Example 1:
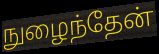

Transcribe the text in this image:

நுழைந்தேன்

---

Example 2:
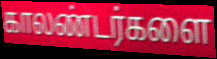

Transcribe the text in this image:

காலண்டர்களை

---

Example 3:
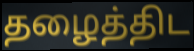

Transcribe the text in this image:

தழைத்திட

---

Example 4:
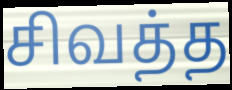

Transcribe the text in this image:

சிவத்த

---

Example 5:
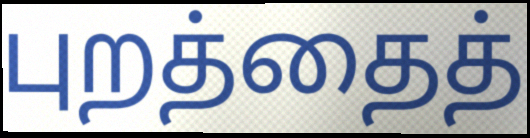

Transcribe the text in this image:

புறத்தைத்